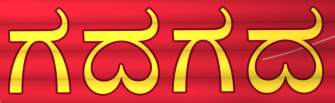
ಗದಗದ